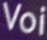
Voi